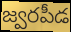
జ్వరపీడ